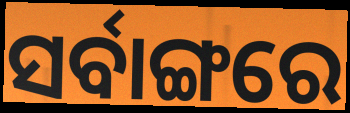
ସର୍ବାଙ୍ଗରେ